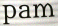
pam